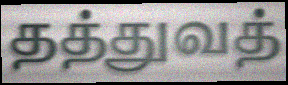
தத்துவத்